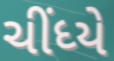
ચીંધ્યે